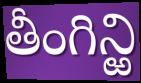
తీంగిన్ఱి